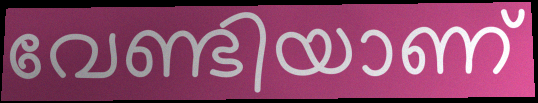
വേണ്ടിയാണ്